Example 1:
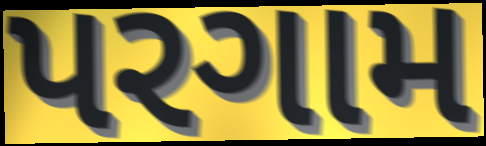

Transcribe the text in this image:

પરગામ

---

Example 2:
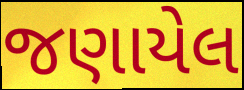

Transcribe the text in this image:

જણાયેલ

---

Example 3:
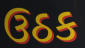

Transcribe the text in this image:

ઉઠક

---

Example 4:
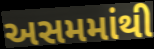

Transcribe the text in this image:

અસમમાંથી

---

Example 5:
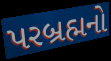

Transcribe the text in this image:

પરબ્રહ્મનો